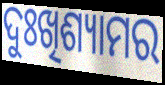
ଦୁଃଖିଶ୍ୟାମର